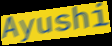
Ayushi